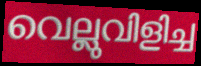
വെല്ലുവിളിച്ച